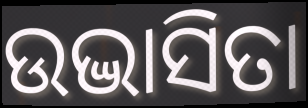
ଉଦ୍ଭାସିତା